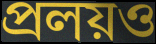
প্রলয়ও